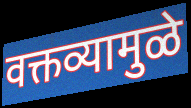
वक्तव्यामुळे